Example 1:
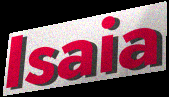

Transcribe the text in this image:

Isaia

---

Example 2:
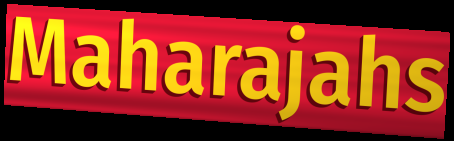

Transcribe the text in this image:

Maharajahs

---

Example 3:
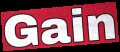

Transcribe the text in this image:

Gain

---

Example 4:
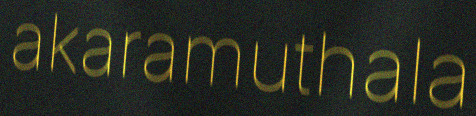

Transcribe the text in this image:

akaramuthala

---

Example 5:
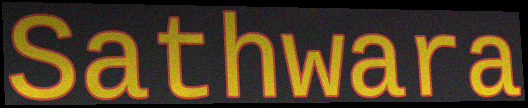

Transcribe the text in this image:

Sathwara